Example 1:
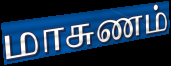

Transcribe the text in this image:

மாசுணம்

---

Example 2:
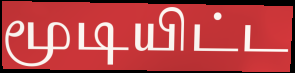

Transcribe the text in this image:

மூடியிட்ட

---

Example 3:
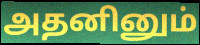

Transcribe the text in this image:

அதனினும்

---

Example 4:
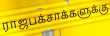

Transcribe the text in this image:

ராஜபக்சாக்களுக்கு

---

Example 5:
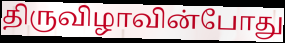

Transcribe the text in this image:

திருவிழாவின்போது